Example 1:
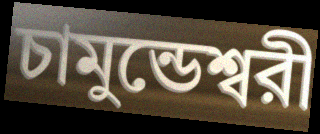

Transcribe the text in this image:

চামুন্ডেশ্বরী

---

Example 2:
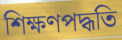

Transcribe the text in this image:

শিক্ষণপদ্ধতি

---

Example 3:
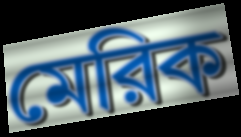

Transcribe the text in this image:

মেরিক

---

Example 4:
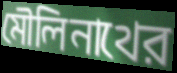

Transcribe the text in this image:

মৌলিনাথের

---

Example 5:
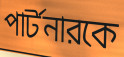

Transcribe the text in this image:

পার্টনারকে